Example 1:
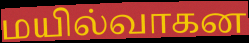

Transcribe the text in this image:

மயில்வாகன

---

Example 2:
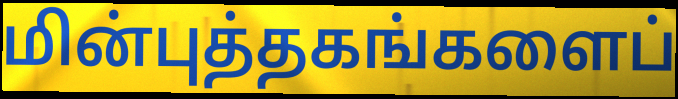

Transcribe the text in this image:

மின்புத்தகங்களைப்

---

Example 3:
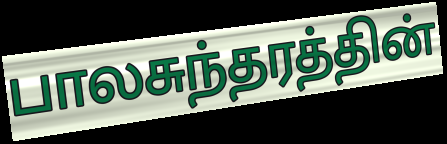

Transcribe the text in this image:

பாலசுந்தரத்தின்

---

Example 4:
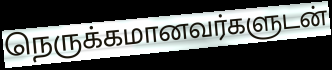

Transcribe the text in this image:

நெருக்கமானவர்களுடன்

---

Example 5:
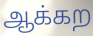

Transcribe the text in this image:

ஆக்கற